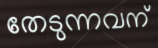
തേടുന്നവന്